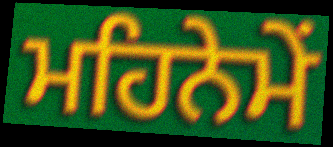
ਮਹਿਨੇਮੇਂ